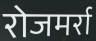
रोजमर्रा